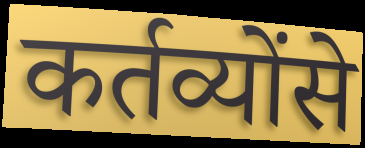
कर्तव्योंसे